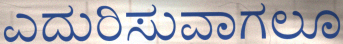
ಎದುರಿಸುವಾಗಲೂ